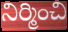
నిర్మించి